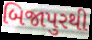
બિજાપુરથી